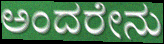
ಅಂದರೇನು